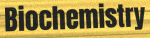
Biochemistry